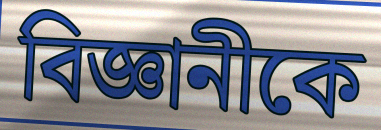
বিজ্ঞানীকে